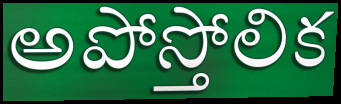
అపోస్తోలిక